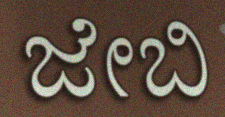
ಜೇಬಿ